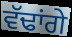
ਵੱਢਾਂਗੇ